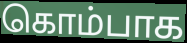
கொம்பாக